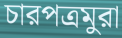
চারপত্রমুরা